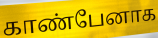
காண்பேனாக